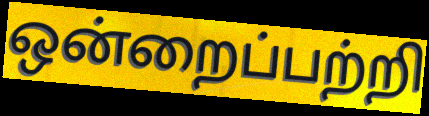
ஒன்றைப்பற்றி